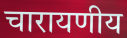
चारायणीय